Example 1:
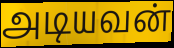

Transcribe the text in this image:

அடியவன்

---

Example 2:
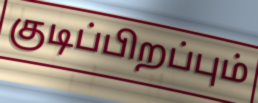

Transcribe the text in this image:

குடிப்பிறப்பும்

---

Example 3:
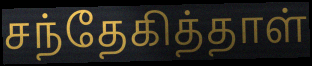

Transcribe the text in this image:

சந்தேகித்தாள்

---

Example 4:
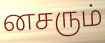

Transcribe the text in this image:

னசரும்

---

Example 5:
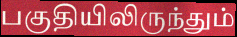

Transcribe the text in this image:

பகுதியிலிருந்தும்